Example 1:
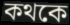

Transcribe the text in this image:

কথকে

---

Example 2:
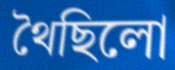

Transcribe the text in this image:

থৈছিলো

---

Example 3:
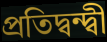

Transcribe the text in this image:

প্ৰতিদ্বন্দ্বী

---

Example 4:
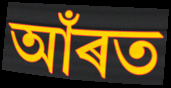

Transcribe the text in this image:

আঁৰত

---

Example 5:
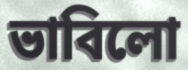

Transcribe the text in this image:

ভাবিলো